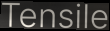
Tensile